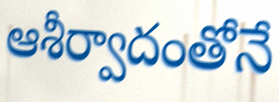
ఆశీర్వాదంతోనే